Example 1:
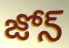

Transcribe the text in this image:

జోన్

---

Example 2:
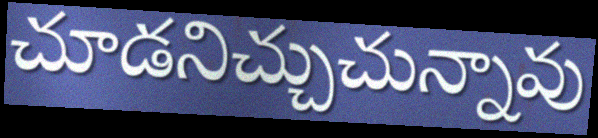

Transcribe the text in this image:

చూడనిచ్చుచున్నావు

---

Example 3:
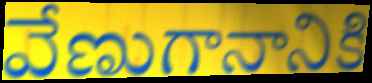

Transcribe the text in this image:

వేణుగానానికి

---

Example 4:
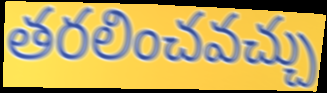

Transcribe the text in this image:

తరలించవచ్చు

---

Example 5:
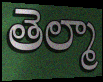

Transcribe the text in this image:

తెల్మా